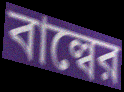
বাল্বের